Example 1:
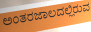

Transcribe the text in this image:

ಅಂತರಜಾಲದಲ್ಲಿರುವ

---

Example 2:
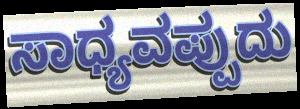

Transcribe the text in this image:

ಸಾಧ್ಯವಪ್ಪುದು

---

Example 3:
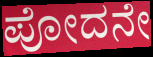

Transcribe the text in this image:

ಪೋದನೇ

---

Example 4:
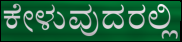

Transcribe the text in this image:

ಕೇಳುವುದರಲ್ಲಿ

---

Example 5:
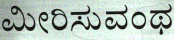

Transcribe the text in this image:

ಮೀರಿಸುವಂಥ